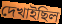
দেখাইছিল